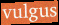
vulgus